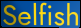
Selfish